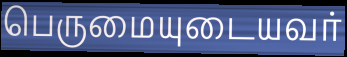
பெருமையுடையவர்